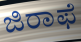
ಜಿರಾಫೆ